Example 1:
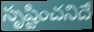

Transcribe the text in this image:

సృష్టించనిదే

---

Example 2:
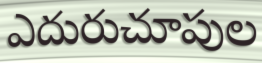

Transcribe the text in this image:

ఎదురుచూపుల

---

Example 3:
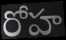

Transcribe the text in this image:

రోహ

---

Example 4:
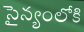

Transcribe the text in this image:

సైన్యంలోకి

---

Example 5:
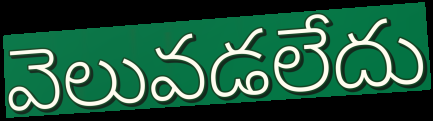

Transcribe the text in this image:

వెలువడలేదు